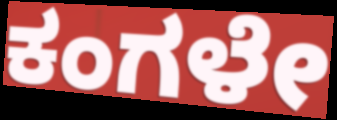
ಕಂಗಳೇ